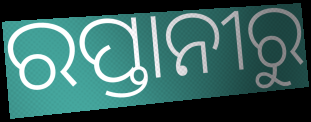
ରପ୍ତାନୀରୁ